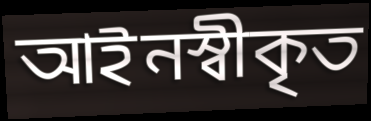
আইনস্বীকৃত